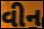
વીન